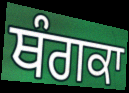
ਥੰਗਕਾ